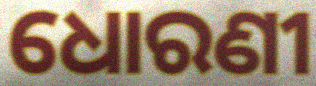
ଧୋରଣୀ